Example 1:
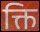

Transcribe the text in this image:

क्ति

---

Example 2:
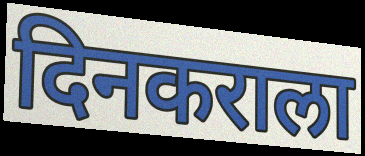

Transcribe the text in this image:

दिनकराला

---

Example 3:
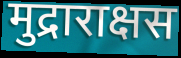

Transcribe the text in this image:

मुद्राराक्षस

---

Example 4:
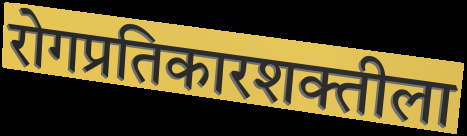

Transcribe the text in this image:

रोगप्रतिकारशक्तीला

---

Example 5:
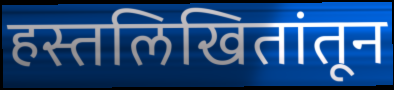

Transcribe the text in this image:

हस्तलिखितांतून